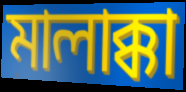
মালাক্কা